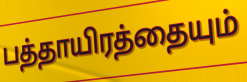
பத்தாயிரத்தையும்